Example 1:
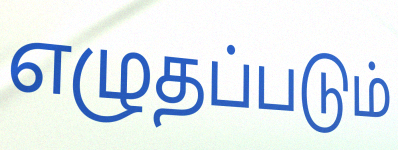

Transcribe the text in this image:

எழுதப்படும்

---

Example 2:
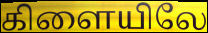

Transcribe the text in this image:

கிளையிலே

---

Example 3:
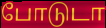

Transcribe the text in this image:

போடுடா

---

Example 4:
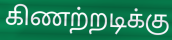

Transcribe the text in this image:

கிணற்றடிக்கு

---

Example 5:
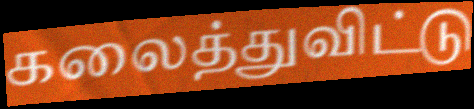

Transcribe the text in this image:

கலைத்துவிட்டு